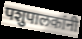
पशुपालकांनी